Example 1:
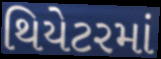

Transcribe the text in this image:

થિયેટરમાં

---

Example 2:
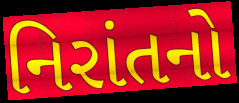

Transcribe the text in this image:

નિરાંતનો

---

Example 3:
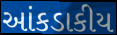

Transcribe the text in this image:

આંકડાકીય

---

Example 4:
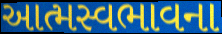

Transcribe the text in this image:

આત્મસ્વભાવના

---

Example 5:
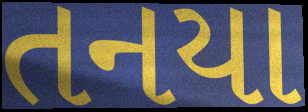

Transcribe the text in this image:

તનયા